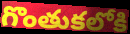
గొంతుకలోకి